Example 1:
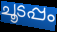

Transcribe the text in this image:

ചൂടപ്പം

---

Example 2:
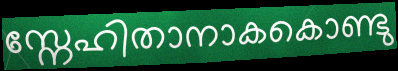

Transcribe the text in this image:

സ്നേഹിതാനാകകൊണ്ടു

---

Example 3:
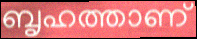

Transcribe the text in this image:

ബൃഹത്താണ്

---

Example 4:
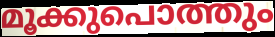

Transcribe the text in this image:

മൂക്കുപൊത്തും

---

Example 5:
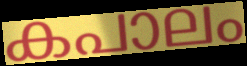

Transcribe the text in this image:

കപാലം